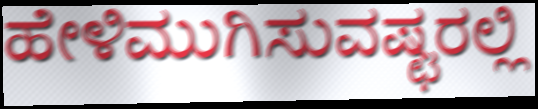
ಹೇಳಿಮುಗಿಸುವಷ್ಟರಲ್ಲಿ